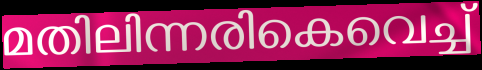
മതിലിന്നരികെവെച്ച്